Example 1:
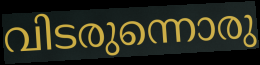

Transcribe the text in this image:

വിടരുന്നൊരു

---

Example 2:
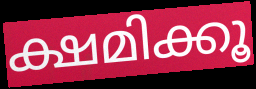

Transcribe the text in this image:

ക്ഷമിക്കൂ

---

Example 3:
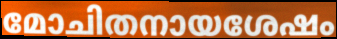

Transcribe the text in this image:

മോചിതനായശേഷം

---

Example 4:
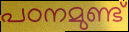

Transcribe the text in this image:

പഠനമുണ്ട്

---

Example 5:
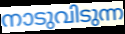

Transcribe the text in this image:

നാടുവിടുന്ന